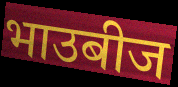
भाउबीज